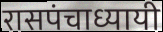
रासपंचाध्यायी